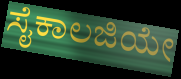
ಸೈಕಾಲಜಿಯೇ